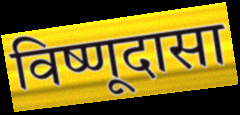
विष्णूदासा